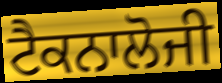
ਟੈਕਨਾਲੋਜੀ